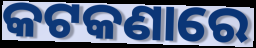
କଟକଣାରେ